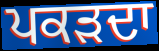
ਪਕੜਦਾ